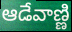
ఆడేవాణ్ణి